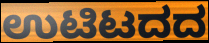
ಉಟಿಟದದ